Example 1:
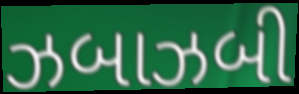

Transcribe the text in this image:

ઝબાઝબી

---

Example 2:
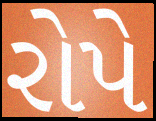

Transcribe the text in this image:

રોપે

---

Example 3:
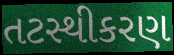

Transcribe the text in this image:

તટસ્થીકરણ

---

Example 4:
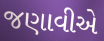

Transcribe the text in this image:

જણાવીએ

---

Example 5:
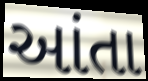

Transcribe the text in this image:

આંતા